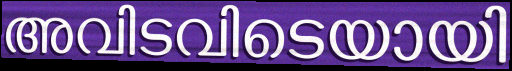
അവിടവിടെയായി